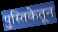
पुस्तिकेतून